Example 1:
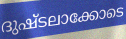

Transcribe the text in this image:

ദുഷ്ടലാക്കോടെ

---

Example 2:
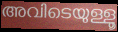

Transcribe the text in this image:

അവിടെയുള്ളൂ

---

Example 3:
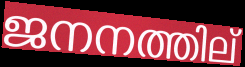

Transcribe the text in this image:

ജനനത്തില്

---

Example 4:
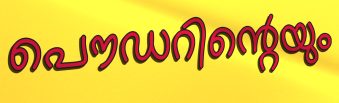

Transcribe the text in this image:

പൌഡറിന്റെയും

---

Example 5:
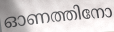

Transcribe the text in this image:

ഓണത്തിനോ